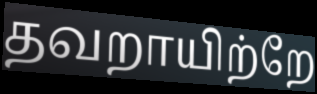
தவறாயிற்றே